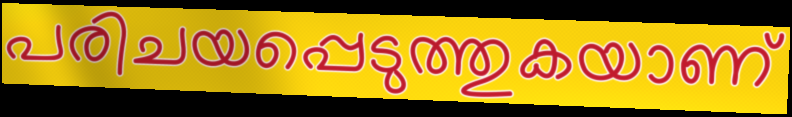
പരിചയപ്പെടുത്തുകയാണ്